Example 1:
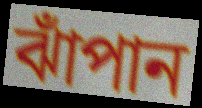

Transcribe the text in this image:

ঝাঁপান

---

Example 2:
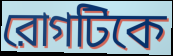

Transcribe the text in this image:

রোগটিকে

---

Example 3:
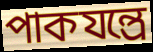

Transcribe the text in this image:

পাকযন্ত্রে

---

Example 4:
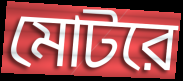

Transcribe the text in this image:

মোটরে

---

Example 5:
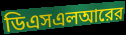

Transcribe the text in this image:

ডিএসএলআরের